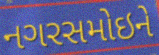
નગરસમોઇને